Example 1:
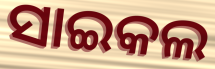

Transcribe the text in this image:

ସାଇକଲ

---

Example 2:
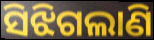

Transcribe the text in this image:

ସିଝିଗଲାଣି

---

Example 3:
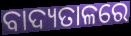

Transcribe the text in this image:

ବାଦ୍ୟତାଳରେ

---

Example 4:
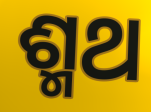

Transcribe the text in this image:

ଶ୍ମଥ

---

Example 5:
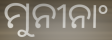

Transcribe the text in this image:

ମୁନୀନାଂ